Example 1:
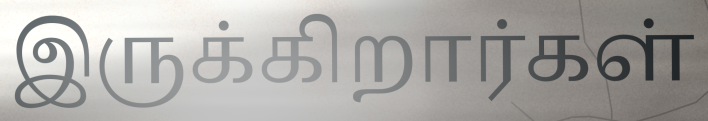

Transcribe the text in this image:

இருக்கிறார்கள்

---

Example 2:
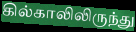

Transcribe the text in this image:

கில்காலிலிருந்து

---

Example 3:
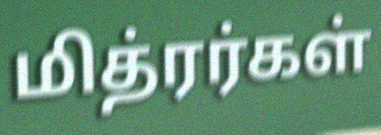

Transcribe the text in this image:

மித்ரர்கள்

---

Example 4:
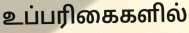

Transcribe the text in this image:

உப்பரிகைகளில்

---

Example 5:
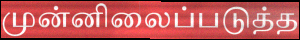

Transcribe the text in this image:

முன்னிலைப்படுத்த